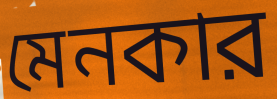
মেনকার